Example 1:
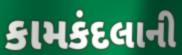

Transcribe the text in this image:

કામકંદલાની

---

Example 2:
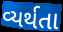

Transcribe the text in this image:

વ્યર્થતા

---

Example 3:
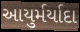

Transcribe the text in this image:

આયુર્મર્યાદા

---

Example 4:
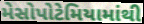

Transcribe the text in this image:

મેસોપોટેમિયામાંથી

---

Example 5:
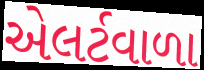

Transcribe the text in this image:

એલર્ટવાળા